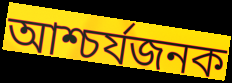
আশ্চৰ্যজনক